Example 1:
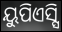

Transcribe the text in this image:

ୟୁପିଏସ୍ସି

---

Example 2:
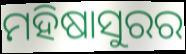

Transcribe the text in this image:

ମହିଷାସୁରର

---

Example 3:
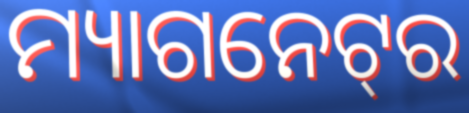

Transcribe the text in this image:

ମ୍ୟାଗନେଟ୍‌ର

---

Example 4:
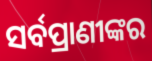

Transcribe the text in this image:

ସର୍ବପ୍ରାଣୀଙ୍କର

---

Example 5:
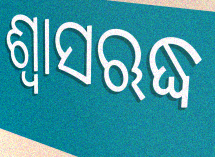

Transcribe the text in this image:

ଶ୍ୱାସଋଦ୍ଧ